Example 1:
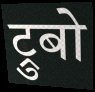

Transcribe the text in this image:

ट्रुबो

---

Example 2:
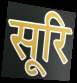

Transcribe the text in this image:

सूरि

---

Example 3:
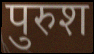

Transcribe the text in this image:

पुरुश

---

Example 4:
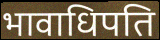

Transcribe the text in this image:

भावाधिपति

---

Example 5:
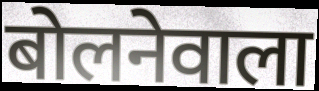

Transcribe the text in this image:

बोलनेवाला